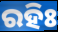
ରହିଃ